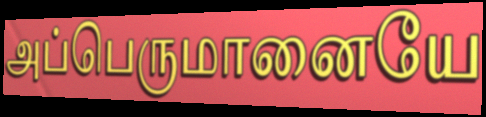
அப்பெருமானையே